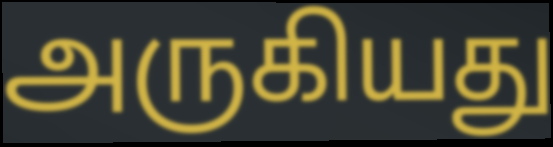
அருகியது